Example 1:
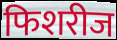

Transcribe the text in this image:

फिशरीज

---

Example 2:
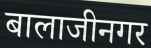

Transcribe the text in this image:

बालाजीनगर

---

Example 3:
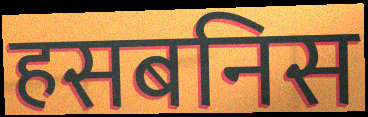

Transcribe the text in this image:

हसबनिस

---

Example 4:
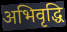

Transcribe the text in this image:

अभिवृद्धि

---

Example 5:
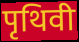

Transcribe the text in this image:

पृथिवी